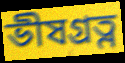
ভীষগ্ৰত্ন